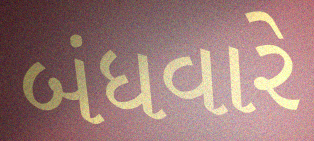
બંધવારે